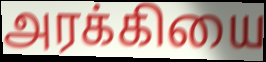
அரக்கியை